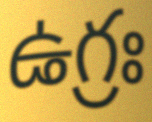
ఉగ్రః